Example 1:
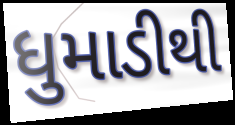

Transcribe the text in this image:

ધુમાડીથી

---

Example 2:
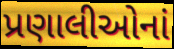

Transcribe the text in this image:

પ્રણાલીઓનાં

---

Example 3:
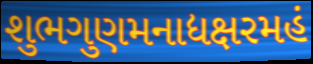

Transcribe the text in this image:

શુભગુણમનાદ્યક્ષરમહં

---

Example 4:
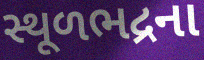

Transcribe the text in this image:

સ્થૂળભદ્રના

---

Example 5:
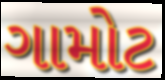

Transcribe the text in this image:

ગામોટ